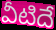
వీటిదే